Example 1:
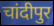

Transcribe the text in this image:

चांदीपुर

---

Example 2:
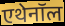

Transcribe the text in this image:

एथेनॉल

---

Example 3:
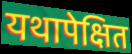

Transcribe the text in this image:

यथापेक्षित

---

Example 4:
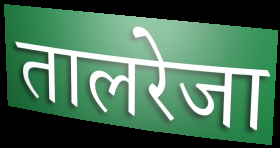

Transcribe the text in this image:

तालरेजा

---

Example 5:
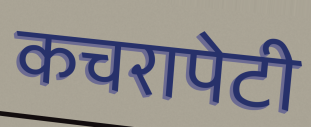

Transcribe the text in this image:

कचरापेटी